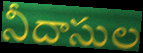
నీదాసుల